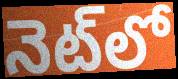
నెట్‌లో